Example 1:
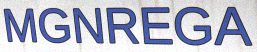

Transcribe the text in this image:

MGNREGA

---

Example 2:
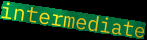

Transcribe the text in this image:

intermediate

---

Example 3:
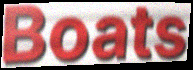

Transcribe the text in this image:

Boats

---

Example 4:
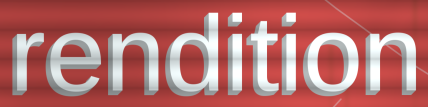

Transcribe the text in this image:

rendition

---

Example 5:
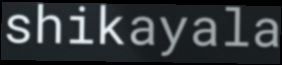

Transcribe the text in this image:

shikayala